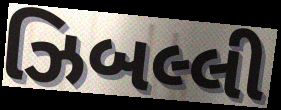
ઝિબલ્લી